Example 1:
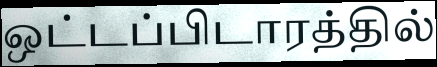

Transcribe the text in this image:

ஒட்டப்பிடாரத்தில்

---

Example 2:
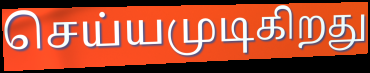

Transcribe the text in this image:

செய்யமுடிகிறது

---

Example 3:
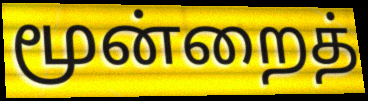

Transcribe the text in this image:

மூன்றைத்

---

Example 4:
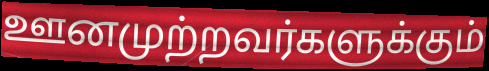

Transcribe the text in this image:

ஊனமுற்றவர்களுக்கும்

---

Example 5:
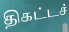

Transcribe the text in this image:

திகட்டச்